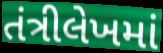
તંત્રીલેખમાં